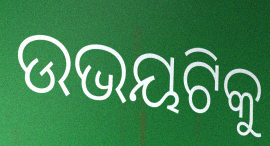
ଉଭୟଟିକୁ